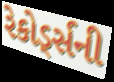
રેકોર્ડ્સની